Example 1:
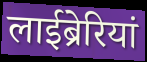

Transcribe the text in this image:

लाईब्रेरियां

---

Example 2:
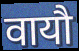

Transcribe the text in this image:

वायौ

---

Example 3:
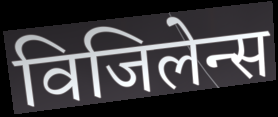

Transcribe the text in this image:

विजिलेन्स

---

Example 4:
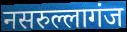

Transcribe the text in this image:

नसरुल्लागंज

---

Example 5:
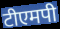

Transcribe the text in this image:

टीएमपी